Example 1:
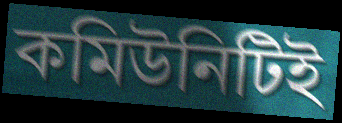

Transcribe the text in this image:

কমিউনিটিই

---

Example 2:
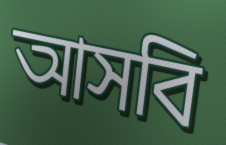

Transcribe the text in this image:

আসবি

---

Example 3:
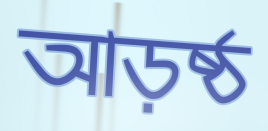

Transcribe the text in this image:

আড়ষ্ঠ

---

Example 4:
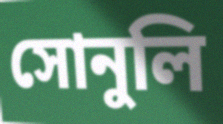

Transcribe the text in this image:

সোনুলি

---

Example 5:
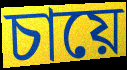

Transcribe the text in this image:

চায়ে